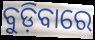
ବୁଡ଼ିବାରେ